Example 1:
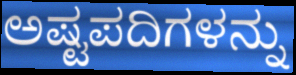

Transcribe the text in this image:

ಅಷ್ಟಪದಿಗಳನ್ನು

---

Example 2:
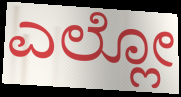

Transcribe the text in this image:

ಎಲ್ಲೋ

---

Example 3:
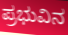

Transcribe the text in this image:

ಪ್ರಭುವಿನ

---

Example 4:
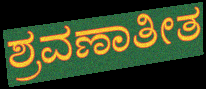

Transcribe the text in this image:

ಶ್ರವಣಾತೀತ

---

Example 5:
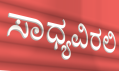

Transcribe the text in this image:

ಸಾಧ್ಯವಿರಲಿ